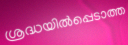
ശ്രദ്ധയിൽപ്പെടാത്ത